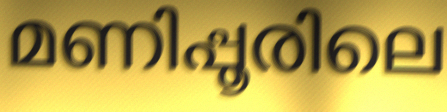
മണിപ്പൂരിലെ